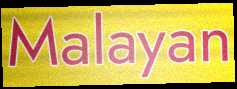
Malayan